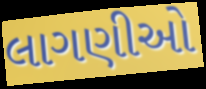
લાગણીઓ